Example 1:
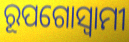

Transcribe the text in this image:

ରୂପଗୋସ୍ୱାମୀ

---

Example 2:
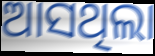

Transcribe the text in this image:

ଆସଥିଲା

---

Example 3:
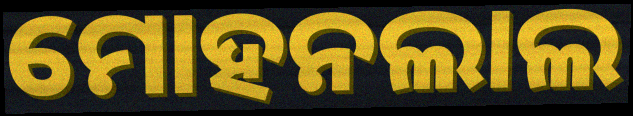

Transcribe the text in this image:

ମୋହନଲାଲ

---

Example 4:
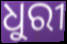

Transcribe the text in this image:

ଧୁରୀ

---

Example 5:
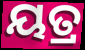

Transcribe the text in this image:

ୟତ୍ର